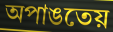
অপাঙতেয়